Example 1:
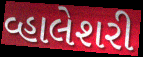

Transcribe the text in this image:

વ્હાલેશરી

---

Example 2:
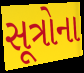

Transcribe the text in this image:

સૂત્રોના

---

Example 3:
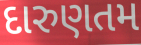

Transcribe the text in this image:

દારુણતમ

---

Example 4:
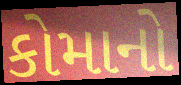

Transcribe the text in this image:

કોમાનો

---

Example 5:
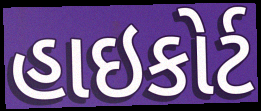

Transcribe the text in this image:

હાઇકોર્ટ